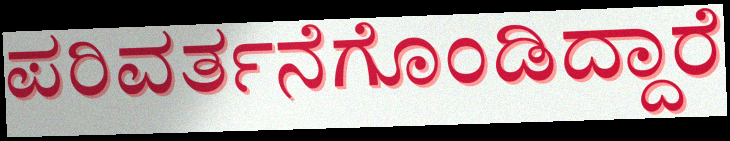
ಪರಿವರ್ತನೆಗೊಂಡಿದ್ದಾರೆ